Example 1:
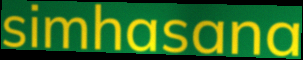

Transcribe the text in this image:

simhasana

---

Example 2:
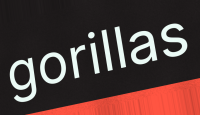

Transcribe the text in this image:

gorillas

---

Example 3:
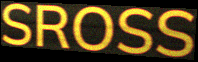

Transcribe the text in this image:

SROSS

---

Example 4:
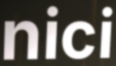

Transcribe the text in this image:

nici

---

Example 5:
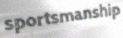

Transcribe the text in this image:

sportsmanship